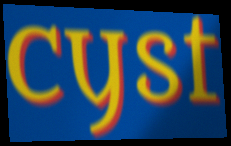
cyst